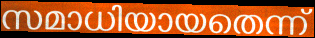
സമാധിയായതെന്ന്